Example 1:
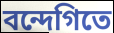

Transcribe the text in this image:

বন্দেগিতে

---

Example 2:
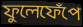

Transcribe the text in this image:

ফুলেফেঁপে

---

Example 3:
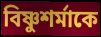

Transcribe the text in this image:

বিষ্ণুশর্মাকে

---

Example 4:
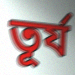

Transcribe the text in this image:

তূর্য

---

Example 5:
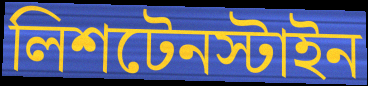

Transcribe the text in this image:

লিশটেনস্টাইন